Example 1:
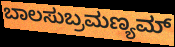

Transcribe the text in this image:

ಬಾಲಸುಬ್ರಮಣ್ಯಮ್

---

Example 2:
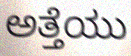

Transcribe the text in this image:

ಅತ್ತೆಯು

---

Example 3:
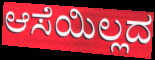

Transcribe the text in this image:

ಆಸೆಯಿಲ್ಲದ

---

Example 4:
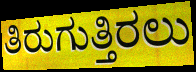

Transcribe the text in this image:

ತಿರುಗುತ್ತಿರಲು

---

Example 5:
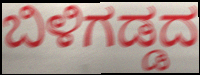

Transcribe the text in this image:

ಬಿಳಿಗಡ್ಡದ